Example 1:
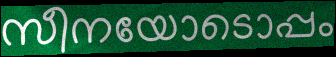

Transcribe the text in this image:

സീനയോടൊപ്പം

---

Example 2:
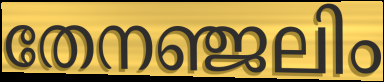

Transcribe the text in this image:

തേനഞ്ജലിം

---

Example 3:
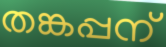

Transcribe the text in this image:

തങ്കപ്പന്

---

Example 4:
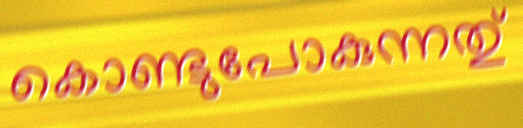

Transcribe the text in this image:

കൊണ്ടുപോകുന്നതു്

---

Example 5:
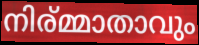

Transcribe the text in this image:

നിര്മ്മാതാവും